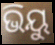
ଭିୟୁ